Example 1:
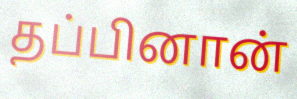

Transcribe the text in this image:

தப்பினான்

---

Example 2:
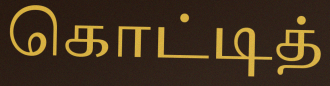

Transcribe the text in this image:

கொட்டித்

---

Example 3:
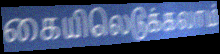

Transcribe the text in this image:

கையிலெடுக்கலாம்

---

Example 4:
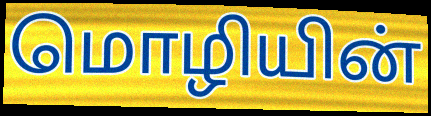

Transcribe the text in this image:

மொழியின்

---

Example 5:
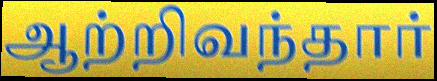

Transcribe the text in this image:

ஆற்றிவந்தார்